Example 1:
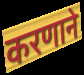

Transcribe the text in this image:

करणाने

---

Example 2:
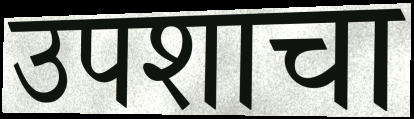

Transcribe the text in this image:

उपशाचा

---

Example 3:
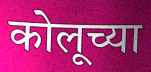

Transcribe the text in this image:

कोलूच्या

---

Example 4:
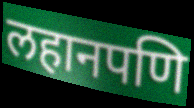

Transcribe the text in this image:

लहानपणि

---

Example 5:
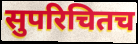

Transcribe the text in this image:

सुपरिचितच